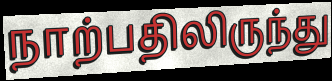
நாற்பதிலிருந்து